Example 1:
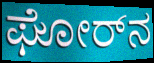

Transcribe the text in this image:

ಘೋರ್‌ನ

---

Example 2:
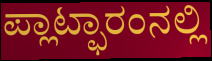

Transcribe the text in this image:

ಪ್ಲಾಟ್ಫಾರಂನಲ್ಲಿ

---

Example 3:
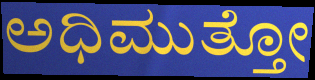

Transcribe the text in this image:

ಅಧಿಮುತ್ತೋ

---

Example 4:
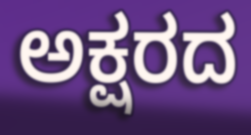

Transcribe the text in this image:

ಅಕ್ಷರದ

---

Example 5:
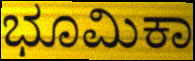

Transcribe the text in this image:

ಭೂಮಿಕಾ